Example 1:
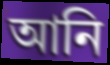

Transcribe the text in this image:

আনি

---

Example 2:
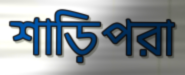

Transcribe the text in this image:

শাড়িপরা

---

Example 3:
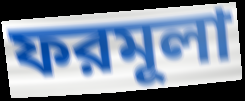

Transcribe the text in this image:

ফরমূলা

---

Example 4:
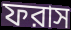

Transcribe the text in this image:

ফরাস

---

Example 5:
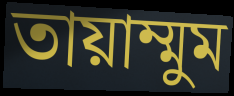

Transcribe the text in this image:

তায়াম্মুম